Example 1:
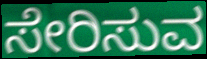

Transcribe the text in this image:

ಸೇರಿಸುವ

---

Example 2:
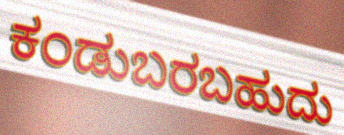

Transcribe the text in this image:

ಕಂಡುಬರಬಹುದು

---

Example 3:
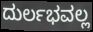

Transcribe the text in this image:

ದುರ್ಲಭವಲ್ಲ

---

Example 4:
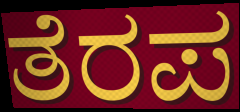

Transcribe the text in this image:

ತೆರಪ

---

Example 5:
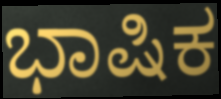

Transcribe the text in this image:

ಭಾಷಿಕ